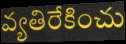
వ్యతిరేకించు